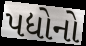
પદ્યોનો